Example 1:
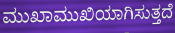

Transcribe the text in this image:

ಮುಖಾಮುಖಿಯಾಗಿಸುತ್ತದೆ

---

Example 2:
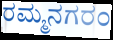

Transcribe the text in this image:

ರಮ್ಮನಗರಂ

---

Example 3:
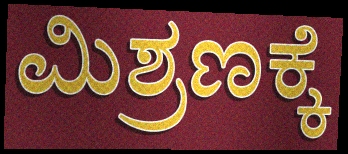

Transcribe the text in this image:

ಮಿಶ್ರಣಕ್ಕೆ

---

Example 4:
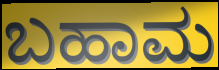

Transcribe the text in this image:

ಬಹಾಮ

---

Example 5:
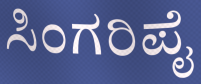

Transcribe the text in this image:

ಸಿಂಗರಿಪೈ